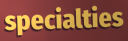
specialties